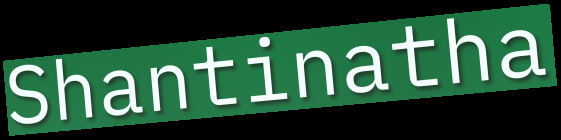
Shantinatha